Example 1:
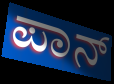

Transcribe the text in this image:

ಪಾನ್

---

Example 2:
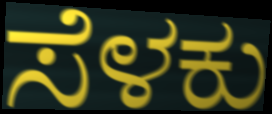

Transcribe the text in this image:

ಸೆಳಕು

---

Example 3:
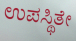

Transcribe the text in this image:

ಉಪಸ್ಥಿತೇ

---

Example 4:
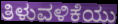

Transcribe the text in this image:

ತಿಳುವಳಿಕೆಯು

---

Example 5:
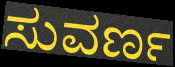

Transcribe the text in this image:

ಸುವರ್ಣ